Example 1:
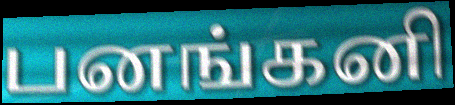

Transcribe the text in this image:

பனங்கனி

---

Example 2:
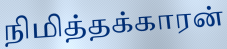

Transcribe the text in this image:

நிமித்தக்காரன்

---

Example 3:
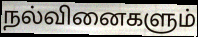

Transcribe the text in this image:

நல்வினைகளும்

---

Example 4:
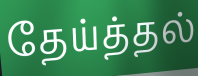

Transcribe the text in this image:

தேய்த்தல்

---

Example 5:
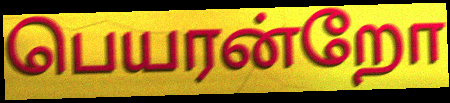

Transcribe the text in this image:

பெயரன்றோ